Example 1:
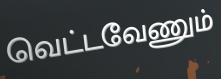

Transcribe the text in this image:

வெட்டவேணும்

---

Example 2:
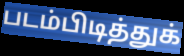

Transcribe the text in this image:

படம்பிடித்துக்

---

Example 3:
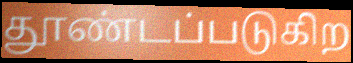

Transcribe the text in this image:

தூண்டப்படுகிற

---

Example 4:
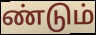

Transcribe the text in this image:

ண்டும்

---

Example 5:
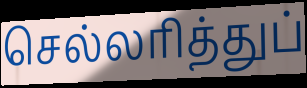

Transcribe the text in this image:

செல்லரித்துப்